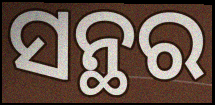
ସନ୍ଥର